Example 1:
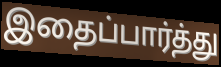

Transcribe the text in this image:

இதைப்பார்த்து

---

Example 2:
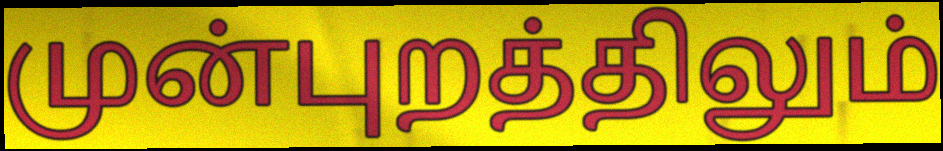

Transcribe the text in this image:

முன்புறத்திலும்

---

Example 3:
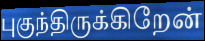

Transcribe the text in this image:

புகுந்திருக்கிறேன்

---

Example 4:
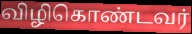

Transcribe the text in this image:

விழிகொண்டவர்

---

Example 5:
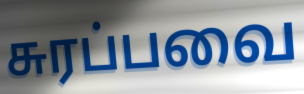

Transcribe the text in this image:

சுரப்பவை